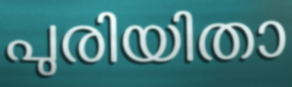
പുരിയിതാ